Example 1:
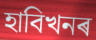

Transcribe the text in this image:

হাবিখনৰ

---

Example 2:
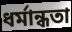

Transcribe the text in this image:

ধৰ্মান্ধতা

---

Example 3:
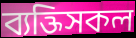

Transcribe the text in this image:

ব্যক্তিসকল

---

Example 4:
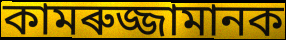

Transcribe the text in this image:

কামৰুজ্জামানক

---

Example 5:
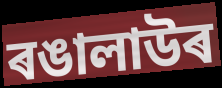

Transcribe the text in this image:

ৰঙালাউৰ